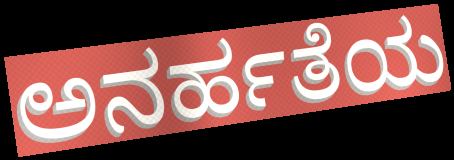
ಅನರ್ಹತೆಯ